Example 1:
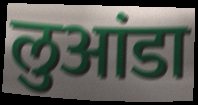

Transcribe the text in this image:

लुआंडा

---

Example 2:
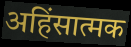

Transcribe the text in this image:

अहिंसात्मक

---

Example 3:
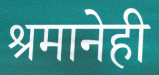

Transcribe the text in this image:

श्रमानेही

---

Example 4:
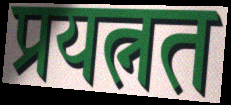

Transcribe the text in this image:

प्रयत्नत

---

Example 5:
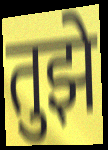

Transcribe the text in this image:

तुझे